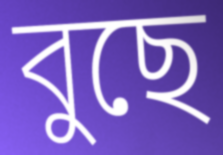
বুছে